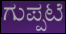
ಗುಪ್ಪಟೆ